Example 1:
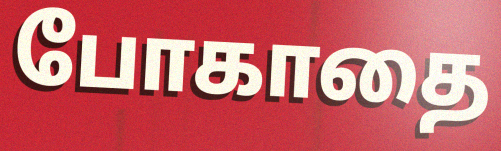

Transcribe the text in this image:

போகாதை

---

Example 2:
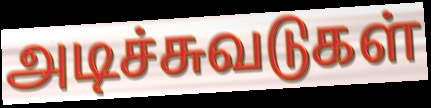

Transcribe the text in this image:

அடிச்சுவடுகள்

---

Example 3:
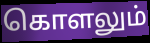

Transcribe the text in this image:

கொளலும்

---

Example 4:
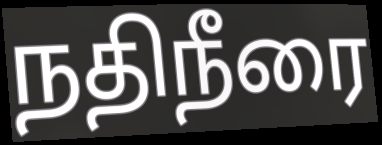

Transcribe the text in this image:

நதிநீரை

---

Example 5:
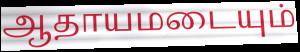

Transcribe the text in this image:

ஆதாயமடையும்